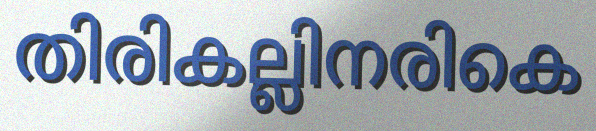
തിരികല്ലിനരികെ